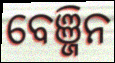
ବେଞ୍ଜିନ